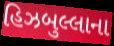
હિઝબુલ્લાના